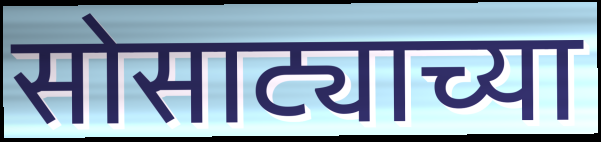
सोसाट्याच्या